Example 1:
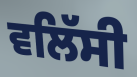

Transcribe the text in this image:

ਵਲਿੱਸੀ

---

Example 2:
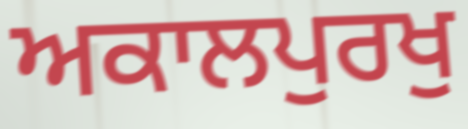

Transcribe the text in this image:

ਅਕਾਲਪੁਰਖੁ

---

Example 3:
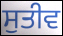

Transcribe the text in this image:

ਸੁਤੀਵ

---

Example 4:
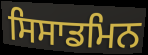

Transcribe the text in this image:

ਸਿਸਾਡਮਿਨ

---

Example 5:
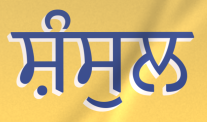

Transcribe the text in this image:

ਸ਼ੰਸੁਲ